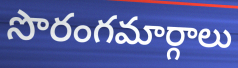
సొరంగమార్గాలు